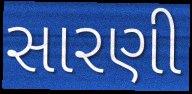
સારણી